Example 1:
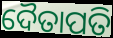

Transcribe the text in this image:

ଦୈତାପତି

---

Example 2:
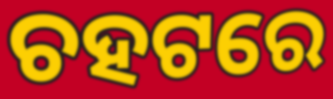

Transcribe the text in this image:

ଚହଟରେ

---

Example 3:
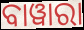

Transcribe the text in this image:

ବାୱାରା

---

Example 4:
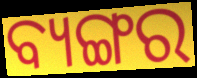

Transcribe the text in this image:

ବ୍ୟଙ୍ଗର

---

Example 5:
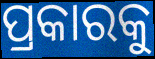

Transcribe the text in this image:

ପ୍ରକାରକୁ